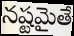
నష్టమైతే